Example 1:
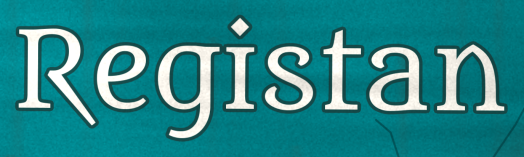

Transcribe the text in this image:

Registan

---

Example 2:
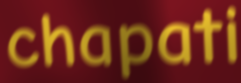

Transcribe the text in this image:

chapati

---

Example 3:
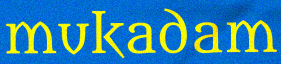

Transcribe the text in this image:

mukadam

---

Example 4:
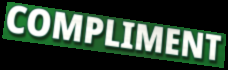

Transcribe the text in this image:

COMPLIMENT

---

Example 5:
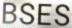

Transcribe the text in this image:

BSES